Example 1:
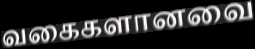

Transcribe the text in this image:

வகைகளானவை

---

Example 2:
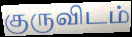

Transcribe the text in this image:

குருவிடம்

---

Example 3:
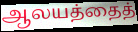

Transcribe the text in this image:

ஆலயத்தைத்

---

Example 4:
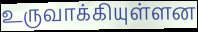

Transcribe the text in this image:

உருவாக்கியுள்ளன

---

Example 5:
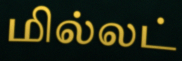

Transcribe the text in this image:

மில்லட்